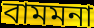
বামমনা